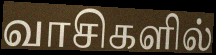
வாசிகளில்